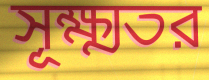
সূক্ষ্মতর